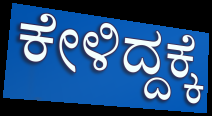
ಕೇಳಿದ್ದಕ್ಕೆ